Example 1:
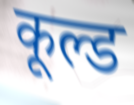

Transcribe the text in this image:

कूल्ड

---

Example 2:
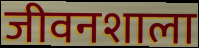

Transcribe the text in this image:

जीवनशाला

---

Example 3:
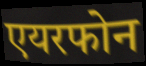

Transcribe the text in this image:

एयरफोन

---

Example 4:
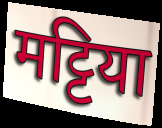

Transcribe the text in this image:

मट्टिया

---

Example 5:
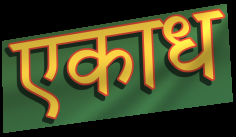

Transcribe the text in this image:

एकाध